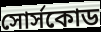
সোর্সকোড